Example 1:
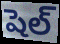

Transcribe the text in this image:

షెల్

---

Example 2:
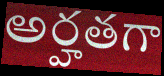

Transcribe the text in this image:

అర్హతగా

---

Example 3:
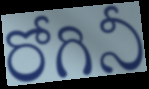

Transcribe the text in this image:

రోగినీ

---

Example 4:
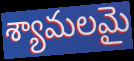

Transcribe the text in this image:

శ్యామలమై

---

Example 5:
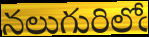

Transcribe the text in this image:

నలుగురిలోఁ